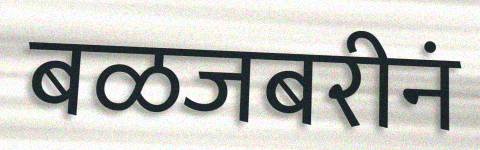
बळजबरीनं